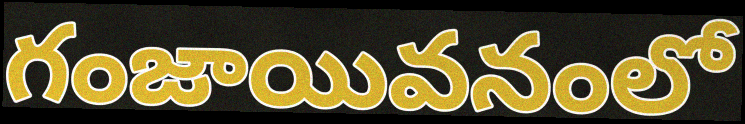
గంజాయివనంలో